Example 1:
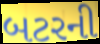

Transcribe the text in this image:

બટરની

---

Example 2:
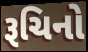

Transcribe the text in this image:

રૂચિનો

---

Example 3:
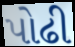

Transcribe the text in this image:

પોઢી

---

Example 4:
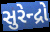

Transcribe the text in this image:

સુરેન્દ્રો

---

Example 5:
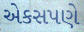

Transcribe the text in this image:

એકસપણે